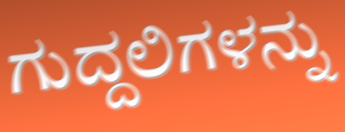
ಗುದ್ದಲಿಗಳನ್ನು